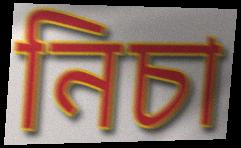
নিচা